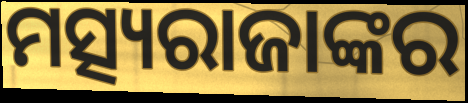
ମତ୍ସ୍ୟରାଜାଙ୍କର